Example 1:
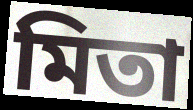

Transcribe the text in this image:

মিতা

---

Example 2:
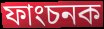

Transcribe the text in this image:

ফাংচনক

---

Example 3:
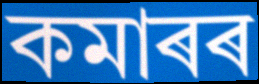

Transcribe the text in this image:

কমাৰৰ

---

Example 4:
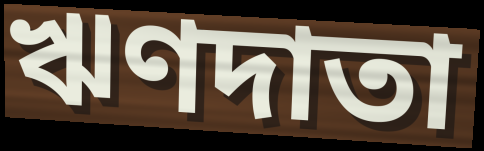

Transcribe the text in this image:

ঋণদাতা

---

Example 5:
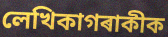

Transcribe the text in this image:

লেখিকাগৰাকীক